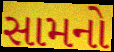
સામનો